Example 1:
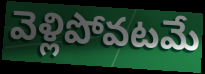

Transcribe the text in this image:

వెళ్లిపోవటమే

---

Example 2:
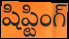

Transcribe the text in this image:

షిప్టింగ్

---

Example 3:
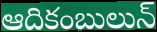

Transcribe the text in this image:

ఆదికంబులున్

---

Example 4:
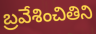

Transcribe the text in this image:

బ్రవేశించితిని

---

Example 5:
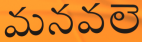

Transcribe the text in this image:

మనవలె